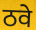
ठवे